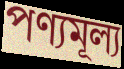
পণ্যমূল্য